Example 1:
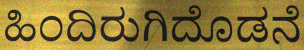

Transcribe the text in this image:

ಹಿಂದಿರುಗಿದೊಡನೆ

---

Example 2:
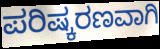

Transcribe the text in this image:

ಪರಿಷ್ಕರಣವಾಗಿ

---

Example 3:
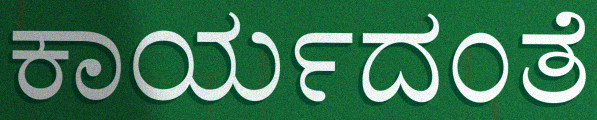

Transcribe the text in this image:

ಕಾರ್ಯದಂತೆ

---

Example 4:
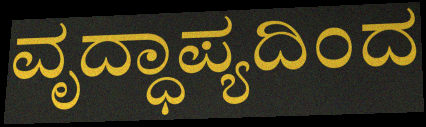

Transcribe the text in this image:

ವೃದ್ಧಾಪ್ಯದಿಂದ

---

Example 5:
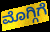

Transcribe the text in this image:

ಮೊಗ್ಗಿಗೆ